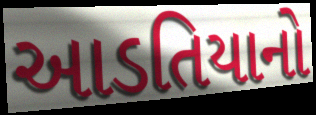
આડતિયાનો